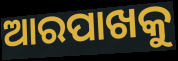
ଆରପାଖକୁ